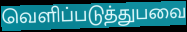
வெளிப்படுத்துபவை